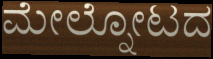
ಮೇಲ್ನೋಟದ